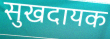
सुखदायक